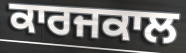
ਕਾਰਜਕਾਲ